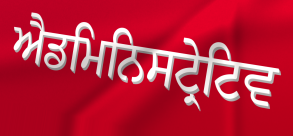
ਐਡਮਿਨਿਸਟ੍ਰੇਟਿਵ